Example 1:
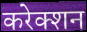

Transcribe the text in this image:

करेक्शन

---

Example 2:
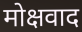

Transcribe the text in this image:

मोक्षवाद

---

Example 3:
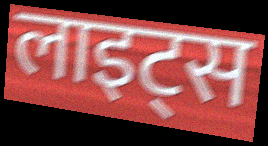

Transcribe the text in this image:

लाइट्स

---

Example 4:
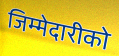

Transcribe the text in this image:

जिम्मेदारीको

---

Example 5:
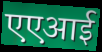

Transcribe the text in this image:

एएआई